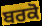
ਬਰਕੋ